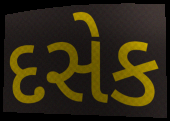
દસેક